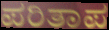
ಪರಿತಾಪ